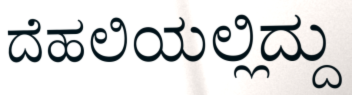
ದೆಹಲಿಯಲ್ಲಿದ್ದು